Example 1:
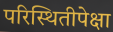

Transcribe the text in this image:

परिस्थितीपेक्षा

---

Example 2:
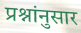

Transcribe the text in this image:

प्रश्नांनुसार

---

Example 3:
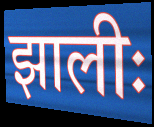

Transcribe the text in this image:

झालीः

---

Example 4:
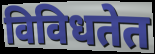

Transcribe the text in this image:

विविधतेत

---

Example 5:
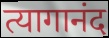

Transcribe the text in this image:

त्यागानंद